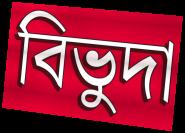
বিভুদা